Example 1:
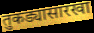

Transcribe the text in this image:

तुकड्यासारखा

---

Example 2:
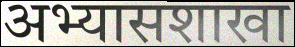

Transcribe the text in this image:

अभ्यासशाखा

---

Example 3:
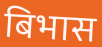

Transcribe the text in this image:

बिभास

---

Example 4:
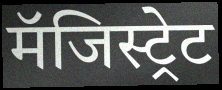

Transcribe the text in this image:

मॅजिस्ट्रेट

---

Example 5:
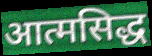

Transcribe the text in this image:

आत्मसिद्ध